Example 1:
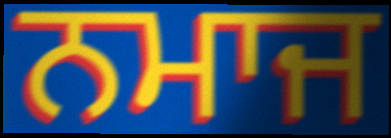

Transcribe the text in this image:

ਨਮਾਜ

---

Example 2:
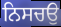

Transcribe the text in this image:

ਨਿਸਚਉ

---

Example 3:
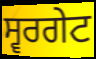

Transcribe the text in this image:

ਸ੍ਵਰਗੇਟ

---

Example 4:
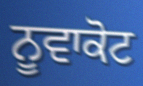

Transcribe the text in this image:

ਨੂਵਾਕੋਟ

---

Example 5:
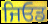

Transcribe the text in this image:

ਜਿਓਡ